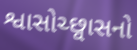
શ્વાસોચ્છ્વાસનો